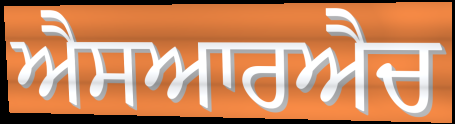
ਐਸਆਰਐਚ